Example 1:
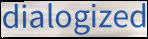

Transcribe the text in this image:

dialogized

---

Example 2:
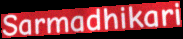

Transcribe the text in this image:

Sarmadhikari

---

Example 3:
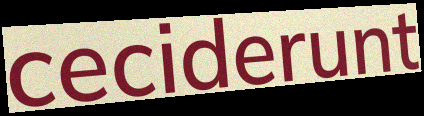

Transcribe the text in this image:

ceciderunt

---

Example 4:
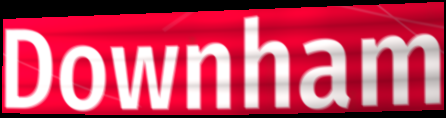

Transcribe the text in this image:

Downham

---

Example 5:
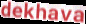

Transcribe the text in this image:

dekhava